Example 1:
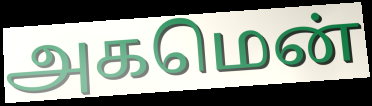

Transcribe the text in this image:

அகமென்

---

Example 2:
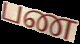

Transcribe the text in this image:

பண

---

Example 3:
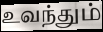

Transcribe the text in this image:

உவந்தும்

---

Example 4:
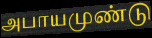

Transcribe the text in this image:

அபாயமுண்டு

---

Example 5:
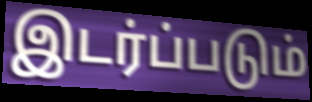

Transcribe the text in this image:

இடர்ப்படும்